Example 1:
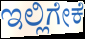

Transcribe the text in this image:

ಇಲ್ಲಿಗೇಕೆ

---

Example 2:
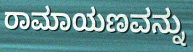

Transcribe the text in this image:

ರಾಮಾಯಣವನ್ನು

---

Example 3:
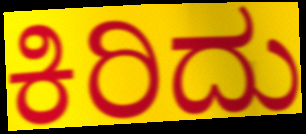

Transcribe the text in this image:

ಕಿರಿದು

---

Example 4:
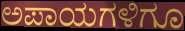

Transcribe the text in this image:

ಅಪಾಯಗಳಿಗೂ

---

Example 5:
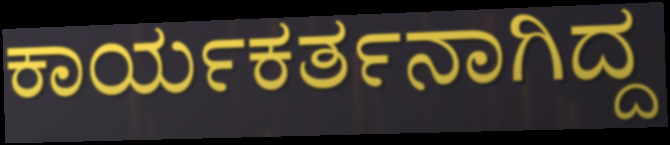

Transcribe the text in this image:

ಕಾರ್ಯಕರ್ತನಾಗಿದ್ದ